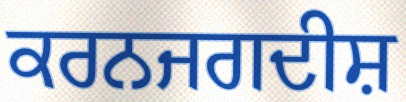
ਕਰਨਜਗਦੀਸ਼